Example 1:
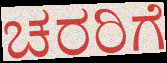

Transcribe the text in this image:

ಚರರಿಗೆ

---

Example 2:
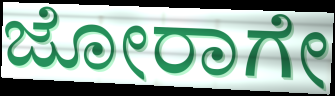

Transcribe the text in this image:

ಜೋರಾಗೇ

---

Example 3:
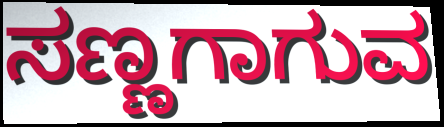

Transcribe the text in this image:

ಸಣ್ಣಗಾಗುವ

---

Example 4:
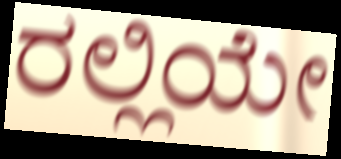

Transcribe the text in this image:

ರಲ್ಲಿಯೇ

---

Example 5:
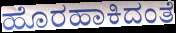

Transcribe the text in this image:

ಹೊರಹಾಕಿದಂತೆ